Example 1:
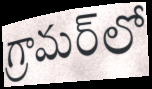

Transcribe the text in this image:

గ్రామర్‌లో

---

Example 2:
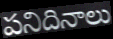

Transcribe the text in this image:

పనిదినాలు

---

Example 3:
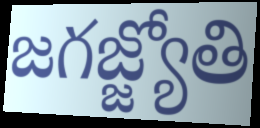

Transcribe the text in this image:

జగజ్జ్యోతి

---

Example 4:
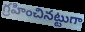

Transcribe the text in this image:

గ్రహించినట్టుగా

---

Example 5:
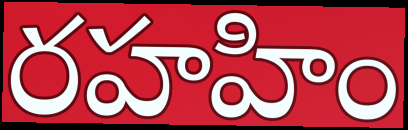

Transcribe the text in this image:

రహహిం